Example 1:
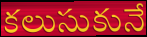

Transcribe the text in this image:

కలుసుకునే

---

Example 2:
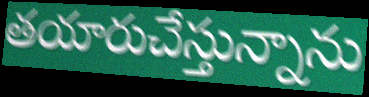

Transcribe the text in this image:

తయారుచేస్తున్నాను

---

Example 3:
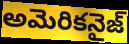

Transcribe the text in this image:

అమెరికనైజ్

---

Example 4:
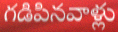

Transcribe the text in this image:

గడిపినవాళ్లు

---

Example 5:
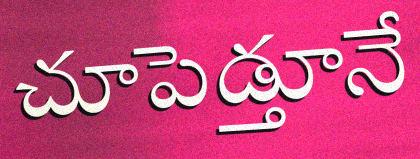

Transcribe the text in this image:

చూపెడ్తూనే